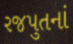
રજપુતનાં